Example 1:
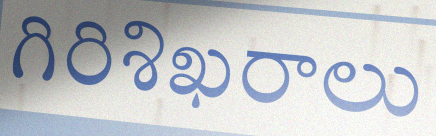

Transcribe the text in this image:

గిరిశిఖరాలు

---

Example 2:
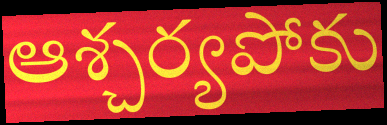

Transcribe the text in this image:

ఆశ్చర్యపోకు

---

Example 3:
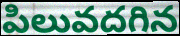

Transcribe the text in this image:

పిలువదగిన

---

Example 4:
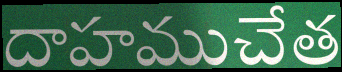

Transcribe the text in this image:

దాహముచేత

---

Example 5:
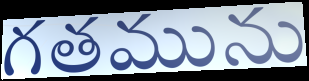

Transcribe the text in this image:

గతమును